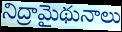
నిద్రామైథునాలు